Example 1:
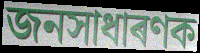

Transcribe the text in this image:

জনসাধাৰণক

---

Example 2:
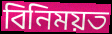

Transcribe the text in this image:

বিনিময়ত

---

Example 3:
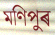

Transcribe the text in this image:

মণিপুৰ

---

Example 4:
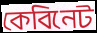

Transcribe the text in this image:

কেবিনেট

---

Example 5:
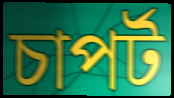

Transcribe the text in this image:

চাপৰ্ট